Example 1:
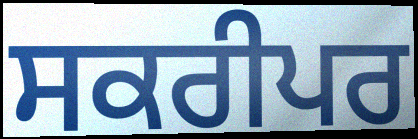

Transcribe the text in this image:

ਸਕਰੀਪਰ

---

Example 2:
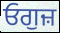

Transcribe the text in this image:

ਓਗੁਜ਼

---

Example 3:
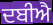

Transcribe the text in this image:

ਦਬੀਐ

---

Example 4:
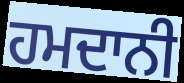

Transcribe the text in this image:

ਹਮਦਾਨੀ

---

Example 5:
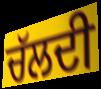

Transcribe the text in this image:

ਚੱਲਦੀ